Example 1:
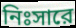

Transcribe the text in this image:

নিঃসারে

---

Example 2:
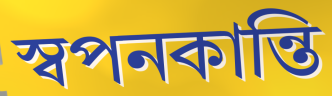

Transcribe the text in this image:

স্বপনকান্তি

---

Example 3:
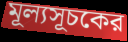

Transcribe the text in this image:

মূল্যসূচকের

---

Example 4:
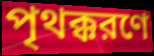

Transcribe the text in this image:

পৃথক্করণে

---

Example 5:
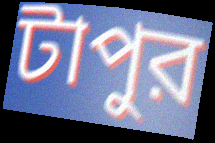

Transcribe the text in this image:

টাপুর